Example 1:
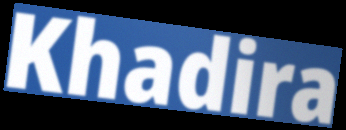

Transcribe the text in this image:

Khadira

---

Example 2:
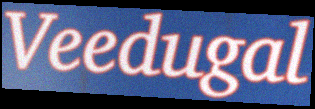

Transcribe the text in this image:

Veedugal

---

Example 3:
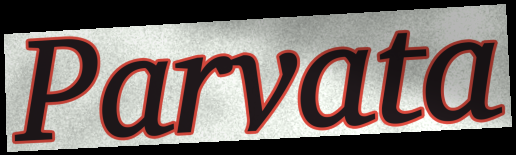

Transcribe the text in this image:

Parvata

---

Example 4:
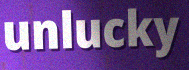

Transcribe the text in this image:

unlucky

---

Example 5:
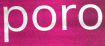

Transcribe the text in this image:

poro